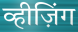
व्हीज़िंग